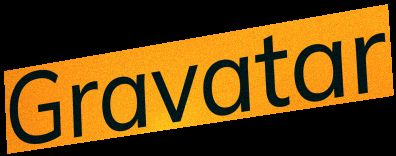
Gravatar